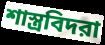
শাস্ত্রবিদরা